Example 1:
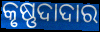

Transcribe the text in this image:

କୃଷ୍ଣଦାଦାର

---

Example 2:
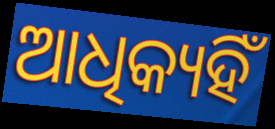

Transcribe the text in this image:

ଆଧିକ୍ୟହିଁ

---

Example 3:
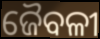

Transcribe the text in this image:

ଜୈବଳୀ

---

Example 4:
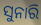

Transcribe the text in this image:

ସୁନାରି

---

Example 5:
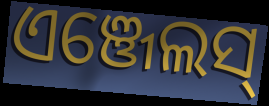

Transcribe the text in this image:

ଏଞ୍ଜେଲସ୍